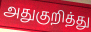
அதுகுறித்து